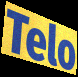
Telo